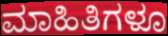
ಮಾಹಿತಿಗಳೂ